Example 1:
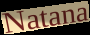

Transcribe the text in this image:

Natana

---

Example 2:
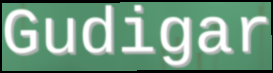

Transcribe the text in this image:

Gudigar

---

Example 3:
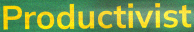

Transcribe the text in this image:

Productivist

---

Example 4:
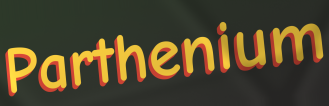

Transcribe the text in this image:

Parthenium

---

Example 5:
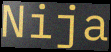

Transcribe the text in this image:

Nija